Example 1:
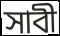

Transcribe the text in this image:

সাবী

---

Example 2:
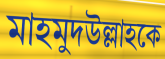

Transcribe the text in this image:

মাহমুদউল্লাহকে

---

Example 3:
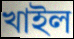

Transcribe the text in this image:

খাইল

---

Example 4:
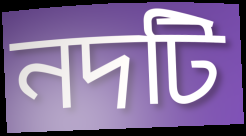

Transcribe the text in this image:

নদটি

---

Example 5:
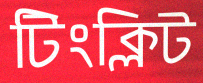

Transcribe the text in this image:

টিংক্লিট